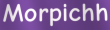
Morpichh